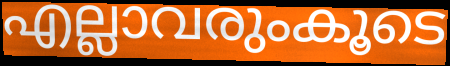
എല്ലാവരുംകൂടെ